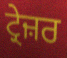
ਟ੍ਰੇਜ਼ਰ